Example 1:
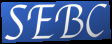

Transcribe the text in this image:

SEBC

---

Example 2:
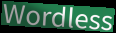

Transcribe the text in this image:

Wordless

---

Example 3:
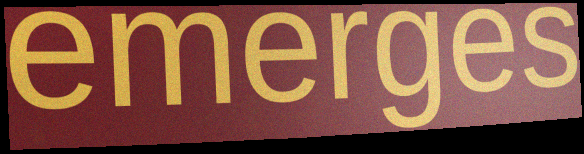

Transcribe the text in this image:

emerges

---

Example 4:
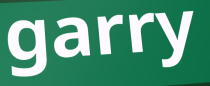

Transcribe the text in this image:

garry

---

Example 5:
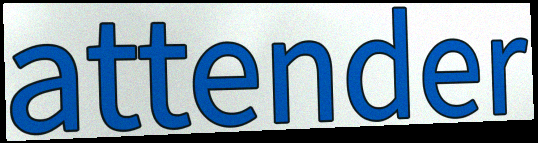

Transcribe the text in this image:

attender